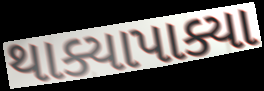
થાક્યાપાક્યા